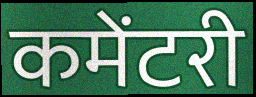
कमेंटरी